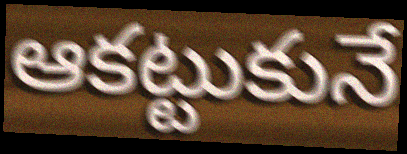
ఆకట్టుకునే